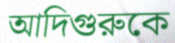
আদিগুরুকে